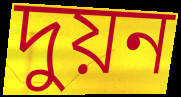
দুয়ন